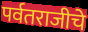
पर्वतराजीचे